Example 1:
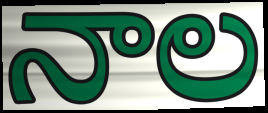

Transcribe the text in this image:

నాల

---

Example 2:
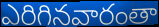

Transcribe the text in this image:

ఎరిగినవారంతా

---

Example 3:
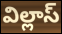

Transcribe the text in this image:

విల్లాస్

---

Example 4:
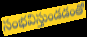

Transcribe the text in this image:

సంభవిస్తుండడంతో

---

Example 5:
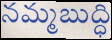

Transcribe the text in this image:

నమ్మబుద్ధి